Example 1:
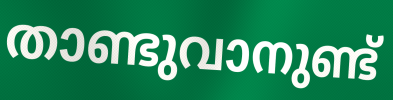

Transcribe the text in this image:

താണ്ടുവാനുണ്ട്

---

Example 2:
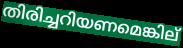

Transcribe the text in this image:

തിരിച്ചറിയണമെങ്കില്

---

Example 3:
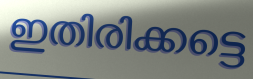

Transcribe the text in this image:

ഇതിരിക്കട്ടെ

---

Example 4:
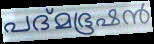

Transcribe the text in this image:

പദ്മഭൂഷൻ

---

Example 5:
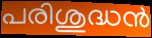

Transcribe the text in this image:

പരിശുദ്ധൻ